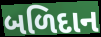
બળિદાન